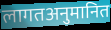
लागतअनुमानित